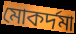
মোকৰ্দমা